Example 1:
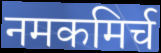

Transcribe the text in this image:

नमकमिर्च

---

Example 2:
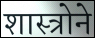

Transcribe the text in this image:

शास्त्रोने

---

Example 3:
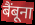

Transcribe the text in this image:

बैंबूना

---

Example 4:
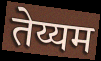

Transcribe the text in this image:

तेय्यम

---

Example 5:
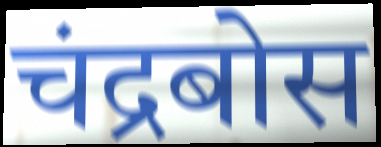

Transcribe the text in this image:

चंद्रबोस